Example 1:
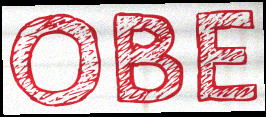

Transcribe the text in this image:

OBE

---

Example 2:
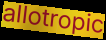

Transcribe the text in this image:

allotropic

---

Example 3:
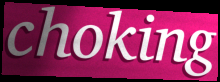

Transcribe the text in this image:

choking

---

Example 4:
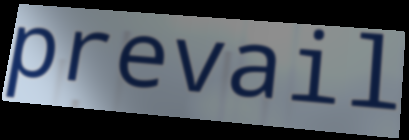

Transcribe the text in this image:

prevail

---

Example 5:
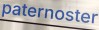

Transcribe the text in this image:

paternoster